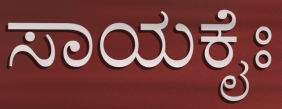
ಸಾಯಕೈಃ